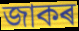
জাকৰ